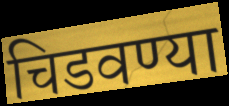
चिडवण्या